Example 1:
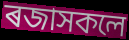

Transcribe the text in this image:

ৰজাসকলে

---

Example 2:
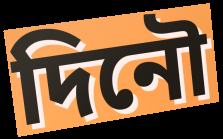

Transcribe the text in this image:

দিনৌ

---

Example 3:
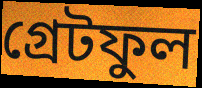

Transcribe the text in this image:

গ্ৰেটফুল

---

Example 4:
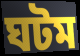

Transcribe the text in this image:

ঘটম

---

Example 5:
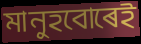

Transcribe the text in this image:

মানুহবোৰেই